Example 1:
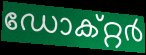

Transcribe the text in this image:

ഡോക്റ്റർ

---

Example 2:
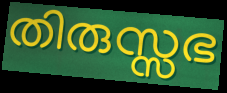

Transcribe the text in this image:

തിരുസ്സഭ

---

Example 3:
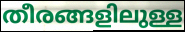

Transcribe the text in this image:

തീരങ്ങളിലുള്ള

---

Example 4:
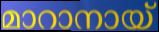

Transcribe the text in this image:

മാറാനായ്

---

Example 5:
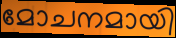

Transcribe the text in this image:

മോചനമായി